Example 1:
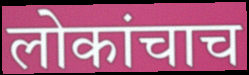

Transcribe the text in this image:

लोकांचाच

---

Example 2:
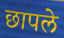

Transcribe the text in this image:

छापले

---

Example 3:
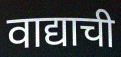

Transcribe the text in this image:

वाद्याची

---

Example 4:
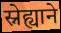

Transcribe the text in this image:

स्नेह्याने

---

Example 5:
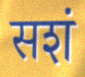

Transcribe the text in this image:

सशं